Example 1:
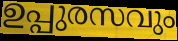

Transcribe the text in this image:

ഉപ്പുരസവും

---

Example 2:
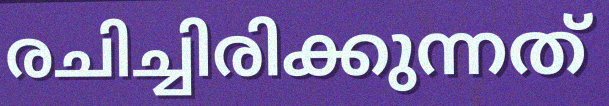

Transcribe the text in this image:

രചിച്ചിരിക്കുന്നത്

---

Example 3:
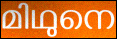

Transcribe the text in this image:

മിഥുനെ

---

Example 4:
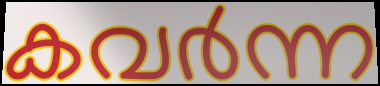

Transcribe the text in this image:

കവർന്ന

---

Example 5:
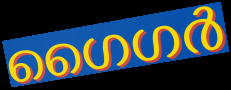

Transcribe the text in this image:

ഗൈഗർ